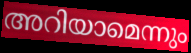
അറിയാമെന്നും